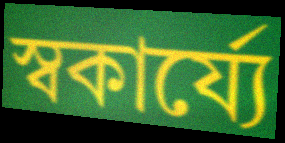
স্বকার্য্যে